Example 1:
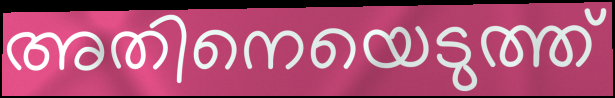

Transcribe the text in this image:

അതിനെയെടുത്ത്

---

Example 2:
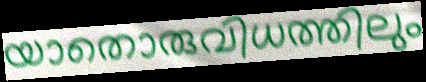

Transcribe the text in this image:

യാതൊരുവിധത്തിലും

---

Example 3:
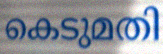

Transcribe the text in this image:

കെടുമതി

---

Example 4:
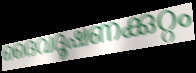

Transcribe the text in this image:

ദൈവദൂഷണക്കുറ്റം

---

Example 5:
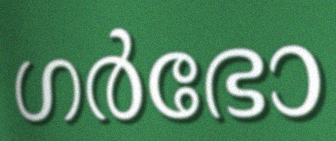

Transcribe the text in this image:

ഗർഭോ